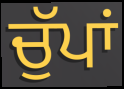
ਚੁੱਪਾਂ